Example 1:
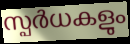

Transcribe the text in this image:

സ്പർധകളും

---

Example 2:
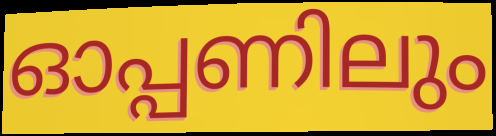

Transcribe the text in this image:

ഓപ്പണിലും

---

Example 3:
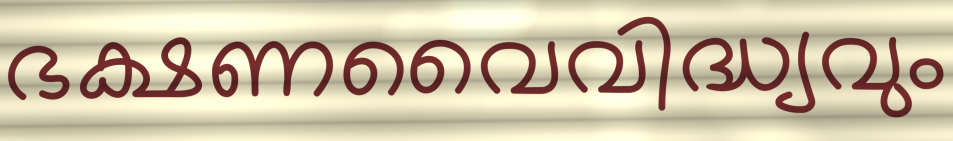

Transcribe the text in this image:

ഭക്ഷണവൈവിദ്ധ്യവും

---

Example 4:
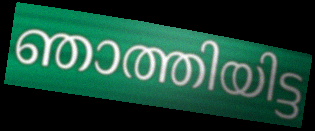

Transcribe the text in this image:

ഞാത്തിയിട്ട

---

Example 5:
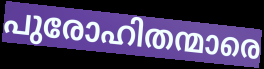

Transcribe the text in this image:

പുരോഹിതന്മാരെ